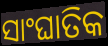
ସାଂଘାତିକ